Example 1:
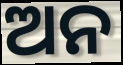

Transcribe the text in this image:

ଅନ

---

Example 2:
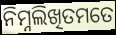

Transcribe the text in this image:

ନିମ୍ନଲିଖିତମତେ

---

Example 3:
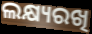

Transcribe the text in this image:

ଲକ୍ଷ୍ୟରଖି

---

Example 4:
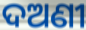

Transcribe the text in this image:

ଦଅଣୀ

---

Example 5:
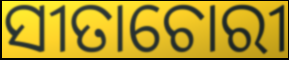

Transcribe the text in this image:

ସୀତାଚୋରୀ